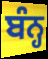
ਬੰਨ੍ਹ